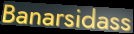
Banarsidass